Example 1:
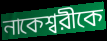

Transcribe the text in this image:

নাকেশ্বরীকে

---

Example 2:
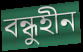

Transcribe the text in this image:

বন্ধুহীন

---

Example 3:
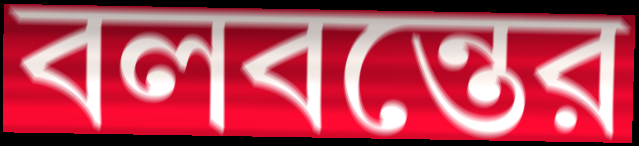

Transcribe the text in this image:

বলবন্তের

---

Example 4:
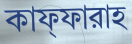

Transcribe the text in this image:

কাফ্ফারাহ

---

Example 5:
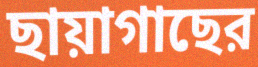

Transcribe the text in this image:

ছায়াগাছের